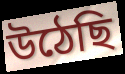
উঠেছি